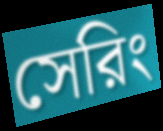
সেরিং